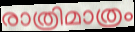
രാത്രിമാത്രം